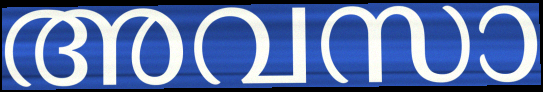
അവസാ